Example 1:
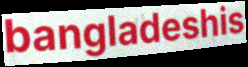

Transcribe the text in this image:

bangladeshis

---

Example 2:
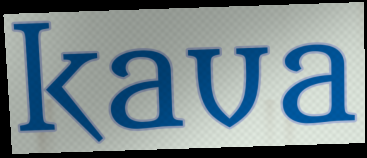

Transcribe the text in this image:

kaua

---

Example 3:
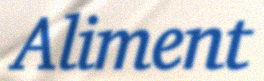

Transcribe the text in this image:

Aliment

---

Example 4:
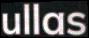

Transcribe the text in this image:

ullas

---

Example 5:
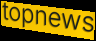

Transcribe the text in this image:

topnews